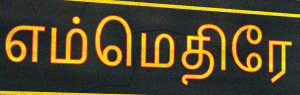
எம்மெதிரே